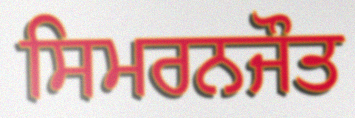
ਸਿਮਰਨਜੌਤ